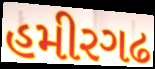
હમીરગઢ